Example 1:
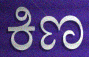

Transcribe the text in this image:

ಕಿಣ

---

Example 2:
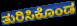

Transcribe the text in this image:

ತುರಿಸಿಕೊಂಡ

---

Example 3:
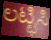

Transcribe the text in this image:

ಲಟ್ಟಿಸಿ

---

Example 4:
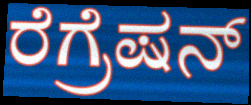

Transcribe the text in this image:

ರೆಗ್ರೆಷನ್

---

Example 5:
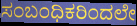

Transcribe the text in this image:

ಸಂಬಂಧಿಕರಿಂದಲೇ